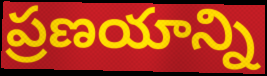
ప్రణయాన్ని